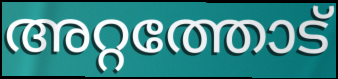
അറ്റത്തോട്